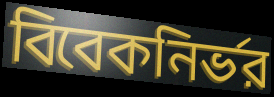
বিবেকনির্ভর